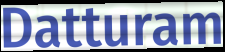
Datturam